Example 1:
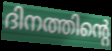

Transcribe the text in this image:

ദിനത്തിന്റെ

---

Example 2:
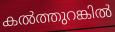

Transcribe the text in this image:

കൽത്തുറങ്കിൽ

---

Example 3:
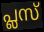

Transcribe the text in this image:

പ്ലസ്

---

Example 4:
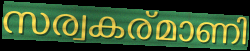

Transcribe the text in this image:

സര്വകര്മാണി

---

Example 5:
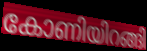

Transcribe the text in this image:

കോണിയിറങ്ങി